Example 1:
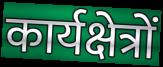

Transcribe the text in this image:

कार्यक्षेत्रों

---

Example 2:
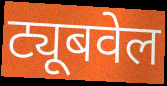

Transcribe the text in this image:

ट्यूबवेल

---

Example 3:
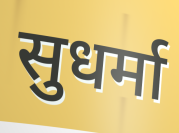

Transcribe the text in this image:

सुधर्मा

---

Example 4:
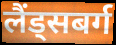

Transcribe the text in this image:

लैंड्सबर्ग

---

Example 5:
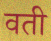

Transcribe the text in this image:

वती